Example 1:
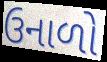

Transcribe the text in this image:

ઉનાળો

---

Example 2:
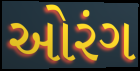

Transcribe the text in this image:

ઓરંગ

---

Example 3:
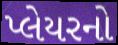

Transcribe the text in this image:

પ્લેયરનો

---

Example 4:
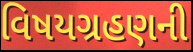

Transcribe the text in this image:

વિષયગ્રહણની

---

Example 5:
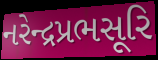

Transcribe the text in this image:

નરેન્દ્રપ્રભસૂરિ